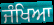
ਜੰਖਿਆ